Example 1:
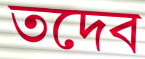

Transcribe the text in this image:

তদেব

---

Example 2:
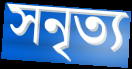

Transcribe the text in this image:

সনৃত্য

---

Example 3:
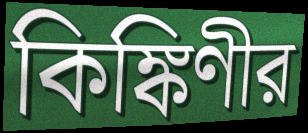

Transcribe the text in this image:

কিঙ্কিণীর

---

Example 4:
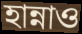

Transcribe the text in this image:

হান্নাও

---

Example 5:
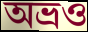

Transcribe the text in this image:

অভ্রও